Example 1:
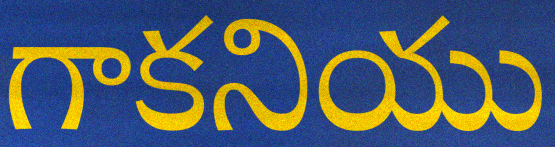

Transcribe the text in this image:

గాకనియు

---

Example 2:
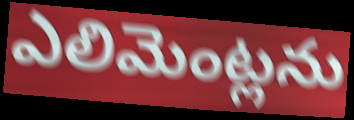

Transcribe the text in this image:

ఎలిమెంట్లను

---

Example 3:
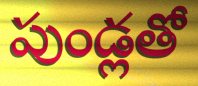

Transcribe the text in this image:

పుండ్లతో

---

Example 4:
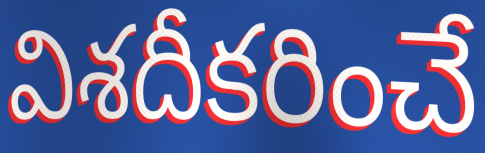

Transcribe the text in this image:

విశదీకరించే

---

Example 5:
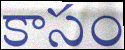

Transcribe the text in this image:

కాసం